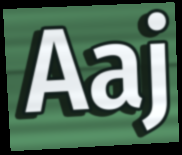
Aaj